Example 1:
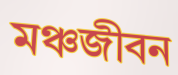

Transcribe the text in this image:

মঞ্চজীবন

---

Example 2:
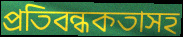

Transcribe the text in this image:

প্রতিবন্ধকতাসহ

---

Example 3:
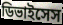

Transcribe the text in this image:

ডিভাইসেস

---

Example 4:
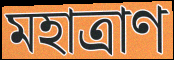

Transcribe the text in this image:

মহাত্রাণ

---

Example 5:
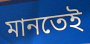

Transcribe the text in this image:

মানতেই